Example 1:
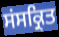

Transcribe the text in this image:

ਸਂਸਕ੍ਰਿਤ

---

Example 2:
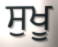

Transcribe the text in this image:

ਸੁਖੂ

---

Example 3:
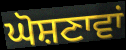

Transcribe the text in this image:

ਘੋਸ਼ਣਾਵਾਂ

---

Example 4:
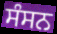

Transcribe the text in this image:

ਸੰਸਨ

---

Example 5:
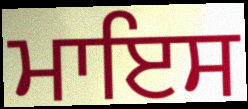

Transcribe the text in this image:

ਮਾਇਸ